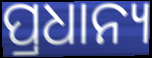
ପ୍ରଧାନ୍ୟ